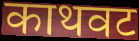
काथवट